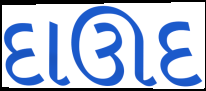
દાઊદ